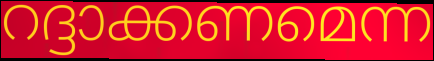
റദ്ദാക്കണമെന്ന